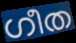
ഗീത